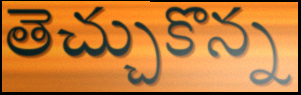
తెచ్చుకొన్న